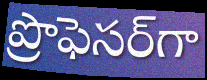
ప్రొఫెసర్‌గా